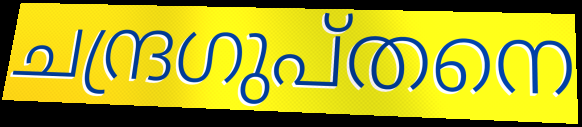
ചന്ദ്രഗുപ്തനെ